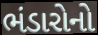
ભંડારોનો